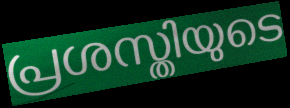
പ്രശസ്തിയുടെ